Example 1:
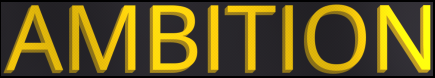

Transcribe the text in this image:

AMBITION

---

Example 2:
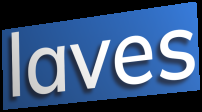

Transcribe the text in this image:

laves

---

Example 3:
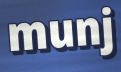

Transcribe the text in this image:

munj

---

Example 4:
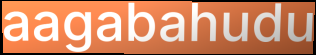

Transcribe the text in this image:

aagabahudu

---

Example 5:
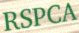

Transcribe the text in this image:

RSPCA